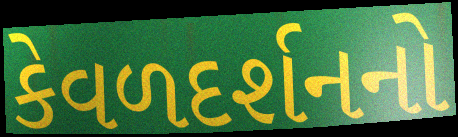
કેવળદર્શનનો